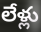
లేళ్లు